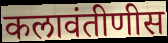
कलावंतीणीस